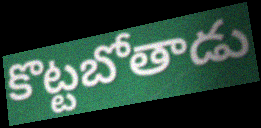
కొట్టబోతాడు